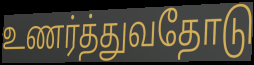
உணர்த்துவதோடு